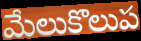
మేలుకొలుప